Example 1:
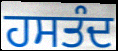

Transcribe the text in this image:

ਹਸਤੰਦ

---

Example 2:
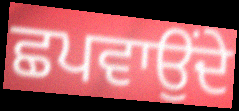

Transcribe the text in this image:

ਛਪਵਾਉਂਦੇ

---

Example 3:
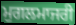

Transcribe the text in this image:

ਮੁਗਲਮਾਜਰੀ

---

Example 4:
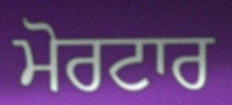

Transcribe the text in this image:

ਮੋਰਟਾਰ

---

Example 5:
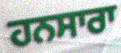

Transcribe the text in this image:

ਹਨਸਾਰਾ